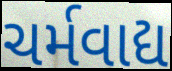
ચર્મવાદ્ય